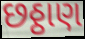
છઠ્ઠાણ